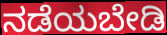
ನಡೆಯಬೇಡಿ